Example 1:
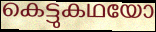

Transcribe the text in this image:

കെട്ടുകഥയോ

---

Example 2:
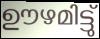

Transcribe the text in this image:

ഊഴമിട്ടു്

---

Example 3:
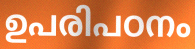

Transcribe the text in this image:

ഉപരിപഠനം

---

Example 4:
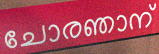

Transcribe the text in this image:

ചോരഞാന്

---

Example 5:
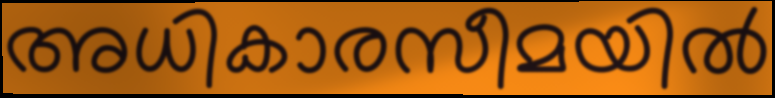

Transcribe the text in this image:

അധികാരസീമയിൽ